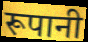
रूपानी